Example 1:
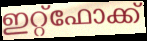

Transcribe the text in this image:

ഇറ്റ്ഫോക്ക്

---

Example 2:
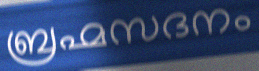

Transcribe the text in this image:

ബ്രഹ്മസദനം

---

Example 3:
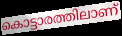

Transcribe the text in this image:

കൊട്ടാരത്തിലാണ്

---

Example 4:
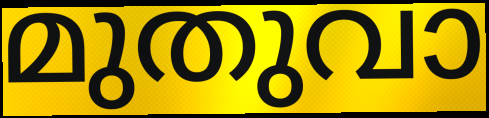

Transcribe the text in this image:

മുതുവാ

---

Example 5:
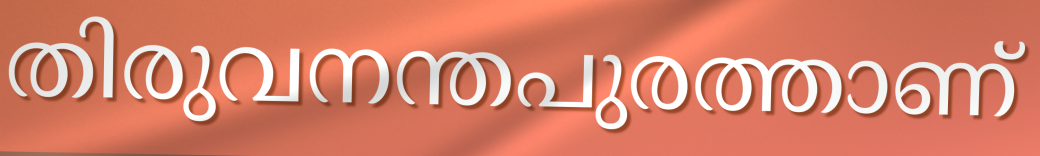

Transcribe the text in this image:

തിരുവനന്തപുരത്താണ്